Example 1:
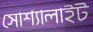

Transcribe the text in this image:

সোশ্যালাইট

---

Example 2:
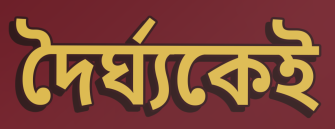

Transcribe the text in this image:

দৈর্ঘ্যকেই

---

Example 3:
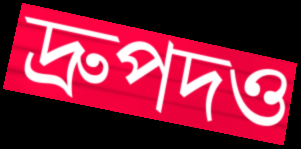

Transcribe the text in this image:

দ্রুপদও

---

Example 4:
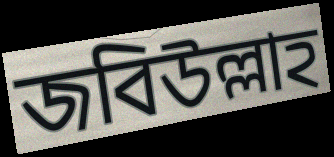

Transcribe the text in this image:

জবিউল্লাহ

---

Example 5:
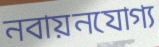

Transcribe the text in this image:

নবায়নযোগ্য